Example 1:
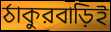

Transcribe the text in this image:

ঠাকুরবাড়িই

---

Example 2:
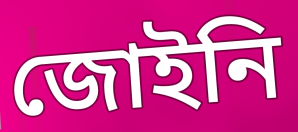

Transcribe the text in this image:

জোইনি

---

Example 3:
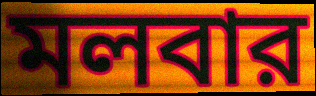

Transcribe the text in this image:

মলবার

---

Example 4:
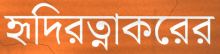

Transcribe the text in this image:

হৃদিরত্নাকরের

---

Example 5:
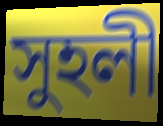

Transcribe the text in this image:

সুহলী